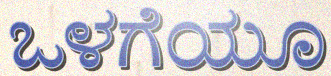
ಒಳಗೆಯೂ